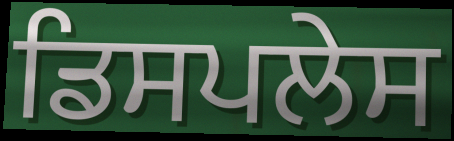
ਡਿਸਪਲੇਸ